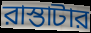
রাস্তাটার